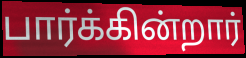
பார்க்கின்றார்